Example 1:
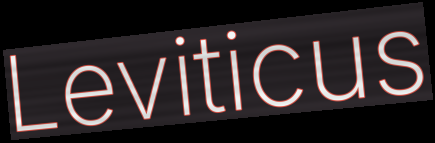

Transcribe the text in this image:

Leviticus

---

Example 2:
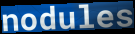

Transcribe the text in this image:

nodules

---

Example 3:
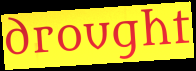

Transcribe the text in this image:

drought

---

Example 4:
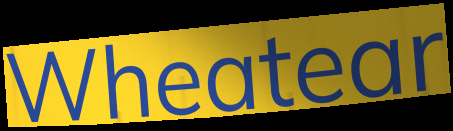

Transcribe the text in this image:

Wheatear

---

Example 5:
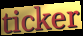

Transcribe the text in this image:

ticker